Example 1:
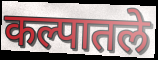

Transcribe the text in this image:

कल्पातले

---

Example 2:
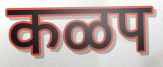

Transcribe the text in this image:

कळप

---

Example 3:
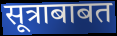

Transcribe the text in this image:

सूत्राबाबत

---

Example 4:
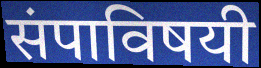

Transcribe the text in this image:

संपाविषयी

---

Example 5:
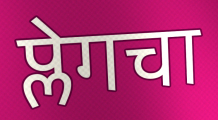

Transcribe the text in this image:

प्लेगचा